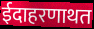
ईदाहरणाथत